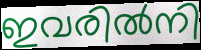
ഇവരിൽനി